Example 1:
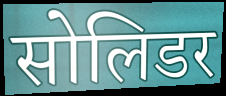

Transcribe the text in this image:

सोलिडर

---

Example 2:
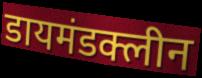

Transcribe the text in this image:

डायमंडक्लीन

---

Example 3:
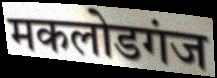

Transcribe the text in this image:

मकलोडगंज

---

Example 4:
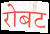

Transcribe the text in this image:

रोबट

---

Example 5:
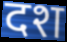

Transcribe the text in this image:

दश